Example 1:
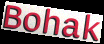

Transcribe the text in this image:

Bohak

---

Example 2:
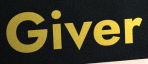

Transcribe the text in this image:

Giver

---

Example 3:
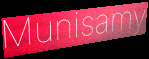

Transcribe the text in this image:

Munisamy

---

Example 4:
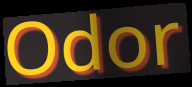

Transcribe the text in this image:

Odor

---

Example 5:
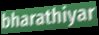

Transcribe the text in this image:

bharathiyar